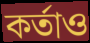
কর্তাও